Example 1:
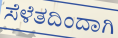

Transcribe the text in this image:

ಸೆಳೆತದಿಂದಾಗಿ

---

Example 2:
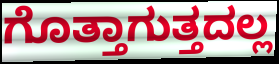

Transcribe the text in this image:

ಗೊತ್ತಾಗುತ್ತದಲ್ಲ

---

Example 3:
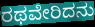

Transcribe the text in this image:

ರಥವೇರಿದನು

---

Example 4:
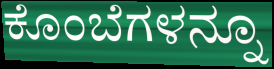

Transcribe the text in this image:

ಕೊಂಬೆಗಳನ್ನೂ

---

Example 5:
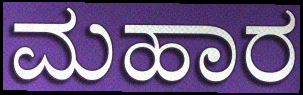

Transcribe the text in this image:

ಮಹಾರ